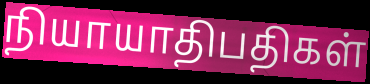
நியாயாதிபதிகள்